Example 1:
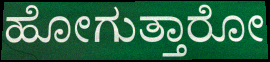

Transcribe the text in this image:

ಹೋಗುತ್ತಾರೋ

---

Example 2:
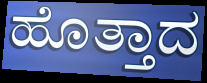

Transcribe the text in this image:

ಹೊತ್ತಾದ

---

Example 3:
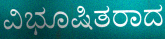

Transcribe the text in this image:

ವಿಭೂಷಿತರಾದ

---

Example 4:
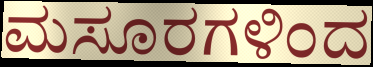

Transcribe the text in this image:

ಮಸೂರಗಳಿಂದ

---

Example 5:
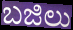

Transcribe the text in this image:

ಬಜಿಲು